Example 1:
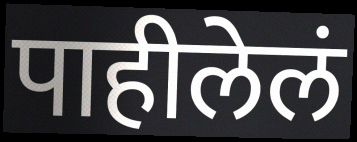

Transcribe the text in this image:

पाहीलेलं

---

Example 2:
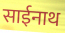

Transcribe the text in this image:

साईनाथ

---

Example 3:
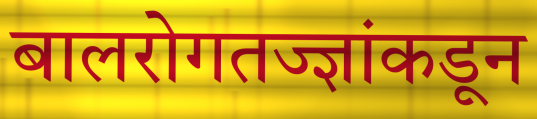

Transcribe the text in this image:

बालरोगतज्ज्ञांकडून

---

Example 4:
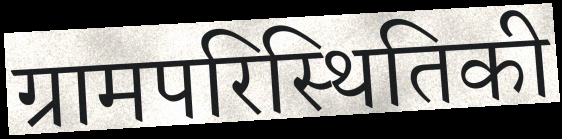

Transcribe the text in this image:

ग्रामपरिस्थितिकी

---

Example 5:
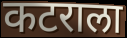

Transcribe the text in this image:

कटराला